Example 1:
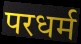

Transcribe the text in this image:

परधर्म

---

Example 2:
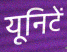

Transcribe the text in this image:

यूनिटें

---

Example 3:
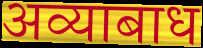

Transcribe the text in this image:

अव्याबाध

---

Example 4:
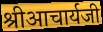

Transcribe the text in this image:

श्रीआचार्यजी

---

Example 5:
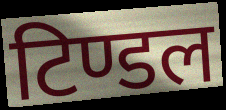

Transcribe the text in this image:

टिण्डल